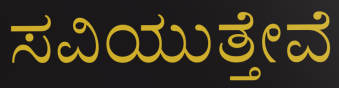
ಸವಿಯುತ್ತೇವೆ